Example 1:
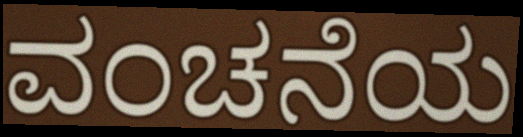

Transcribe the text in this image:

ವಂಚನೆಯ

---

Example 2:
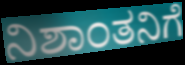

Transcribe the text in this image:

ನಿಶಾಂತನಿಗೆ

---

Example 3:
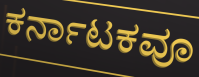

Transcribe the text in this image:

ಕರ್ನಾಟಕವೂ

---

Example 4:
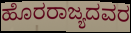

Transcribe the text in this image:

ಹೊರರಾಜ್ಯದವರ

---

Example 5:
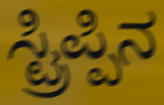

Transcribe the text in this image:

ಸ್ಟ್ರಿಪ್ಪಿನ